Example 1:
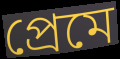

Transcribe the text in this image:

প্ৰেমে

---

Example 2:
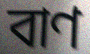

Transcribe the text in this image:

বাণ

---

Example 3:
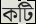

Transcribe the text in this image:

কটি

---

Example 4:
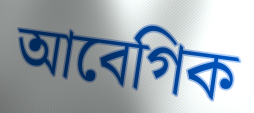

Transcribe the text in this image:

আবেগিক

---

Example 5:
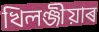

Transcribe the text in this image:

খিলঞ্জীয়াৰ